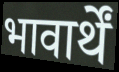
भावार्थें